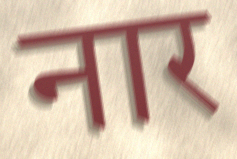
नार